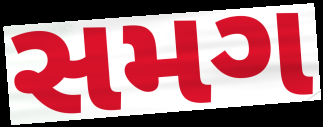
સમગ